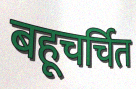
बहूचर्चित